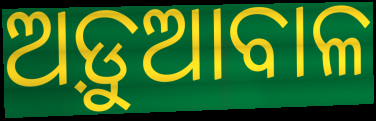
ଅଡ଼ୁଆବାଳ